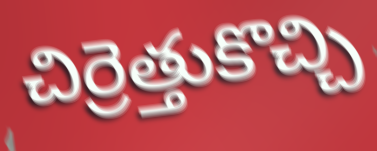
చిర్రెత్తుకొచ్చి